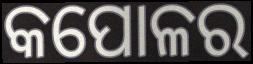
କପୋଳର